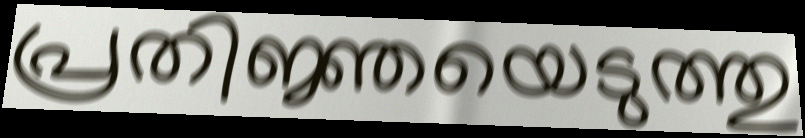
പ്രതിജ്ഞയെടുത്തു